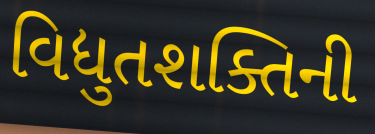
વિદ્યુતશક્તિની